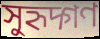
সুহৃদ্গণ